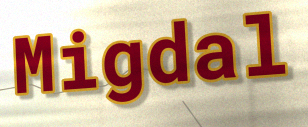
Migdal